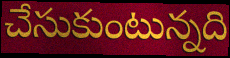
చేసుకుంటున్నది